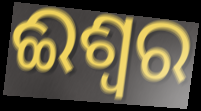
ଈଶ୍ଵର